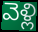
వెళ్లి